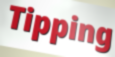
Tipping